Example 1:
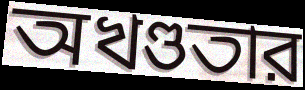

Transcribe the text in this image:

অখণ্ডতার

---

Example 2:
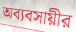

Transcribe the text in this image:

অব্যবসায়ীর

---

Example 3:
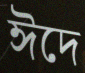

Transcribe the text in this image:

ঈদে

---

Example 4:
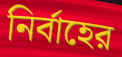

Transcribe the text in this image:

নির্বাহের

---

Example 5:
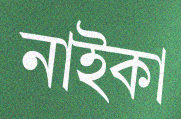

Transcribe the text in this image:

নাইকা